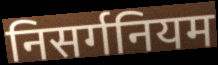
निसर्गनियम